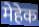
मेहेक